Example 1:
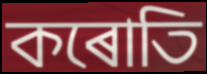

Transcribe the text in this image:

কৰোতি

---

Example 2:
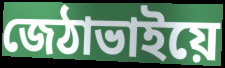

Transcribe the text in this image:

জেঠাভাইয়ে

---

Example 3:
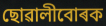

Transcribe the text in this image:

ছোৱালীবোৰক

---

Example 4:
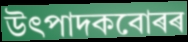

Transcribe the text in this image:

উৎপাদকবোৰৰ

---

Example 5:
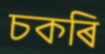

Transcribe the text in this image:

চকৰি